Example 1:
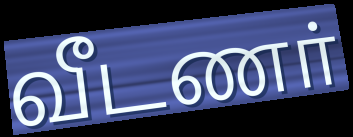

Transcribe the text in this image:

வீடணர்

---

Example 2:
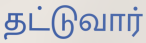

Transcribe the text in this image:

தட்டுவார்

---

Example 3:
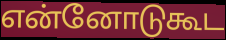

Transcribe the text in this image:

என்னோடுகூட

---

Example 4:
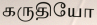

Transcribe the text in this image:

கருதியோ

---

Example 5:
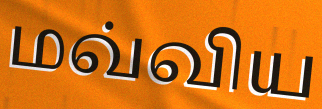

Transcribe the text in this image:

மவ்விய